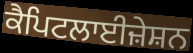
ਕੈਪਿਟਲਾਈਜ਼ੇਸ਼ਨ